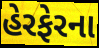
હેરફેરના